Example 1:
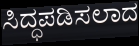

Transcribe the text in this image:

ಸಿದ್ಧಪಡಿಸಲಾದ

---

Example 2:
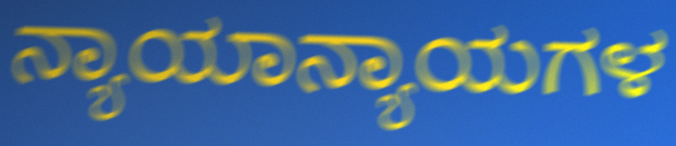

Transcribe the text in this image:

ನ್ಯಾಯಾನ್ಯಾಯಗಳ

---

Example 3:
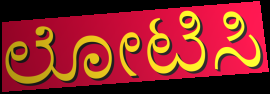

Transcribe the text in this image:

ಲೋಟಿಸಿ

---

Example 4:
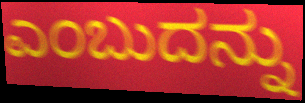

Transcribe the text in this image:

ಎಂಬುದನ್ನು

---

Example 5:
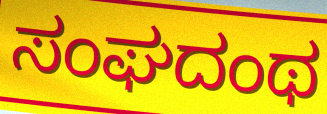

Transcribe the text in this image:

ಸಂಘದಂಥ